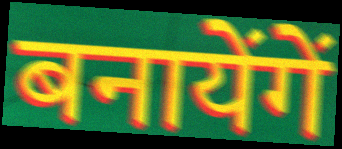
बनायेंगें